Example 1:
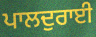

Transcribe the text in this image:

ਪਾਲਦੁਰਾਈ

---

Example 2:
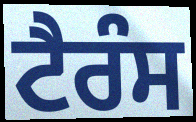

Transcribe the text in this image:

ਟੈਰੰਸ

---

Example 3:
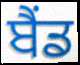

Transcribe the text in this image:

ਬੈਂਡ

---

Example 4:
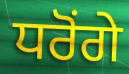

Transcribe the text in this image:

ਧਰੋਂਗੇ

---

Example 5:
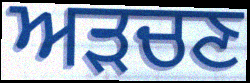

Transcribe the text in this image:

ਅੜਚਣ